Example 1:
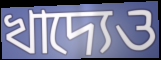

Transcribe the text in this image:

খাদ্যেও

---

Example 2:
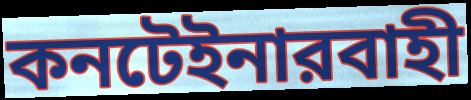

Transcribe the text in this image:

কনটেইনারবাহী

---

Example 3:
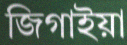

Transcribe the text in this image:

জিগাইয়া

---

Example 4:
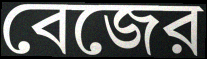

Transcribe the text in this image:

বেজের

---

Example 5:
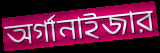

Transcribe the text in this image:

অর্গানাইজার